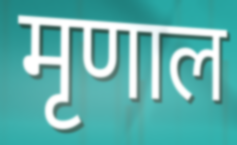
मृणाल